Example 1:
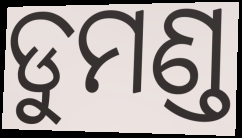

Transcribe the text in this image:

ଡୁମଣ୍ଡ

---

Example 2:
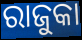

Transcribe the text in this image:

ରାଜୁକା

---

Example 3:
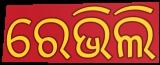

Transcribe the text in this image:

ରେଭିଲି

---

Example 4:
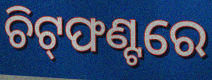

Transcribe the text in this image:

ଚିଟ୍‌ଫଣ୍ଟରେ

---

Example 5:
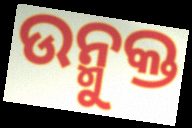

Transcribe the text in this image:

ଉନ୍ମୁକ୍ତ